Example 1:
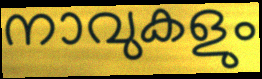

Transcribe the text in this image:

നാവുകളും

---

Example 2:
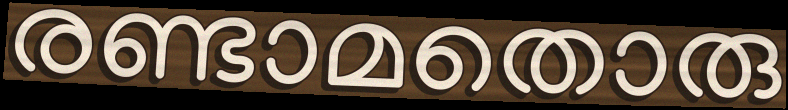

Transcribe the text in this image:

രണ്ടാമതൊരു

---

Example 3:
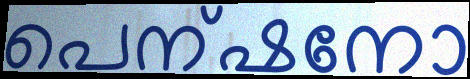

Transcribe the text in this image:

പെന്ഷനോ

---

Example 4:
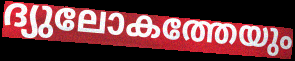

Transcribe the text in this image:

ദ്യുലോകത്തേയും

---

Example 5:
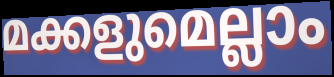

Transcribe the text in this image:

മക്കളുമെല്ലാം